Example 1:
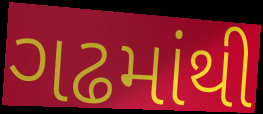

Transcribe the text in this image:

ગઢમાંથી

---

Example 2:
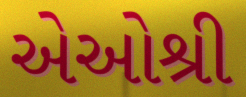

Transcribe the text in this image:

એઓશ્રી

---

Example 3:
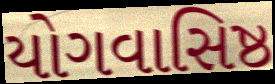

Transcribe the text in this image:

યોગવાસિષ્ઠ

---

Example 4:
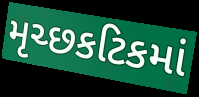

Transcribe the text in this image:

મૃચ્છકટિકમાં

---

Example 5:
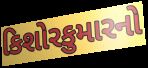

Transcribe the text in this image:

કિશોરકુમારનો